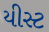
યીસ્ટ